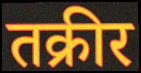
तक्रीर